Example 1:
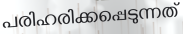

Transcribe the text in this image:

പരിഹരിക്കപ്പെടുന്നത്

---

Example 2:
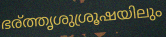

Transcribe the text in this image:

ഭര്ത്തൃശുശ്രൂഷയിലും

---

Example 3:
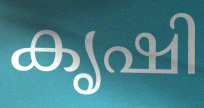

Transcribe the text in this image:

കൃഷി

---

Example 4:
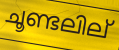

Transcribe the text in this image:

ചൂണ്ടലില്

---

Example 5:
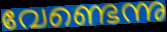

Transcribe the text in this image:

വേണ്ടെന്നു